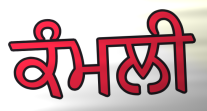
ਕੰਮਲੀ